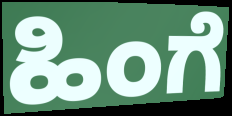
ಹಿಂಗೆ